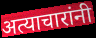
अत्याचारांनी